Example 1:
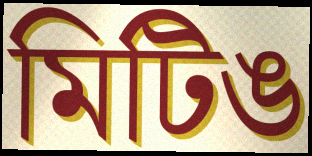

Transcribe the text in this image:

মিটিঙ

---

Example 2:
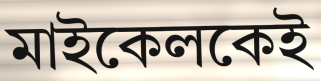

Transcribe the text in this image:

মাইকেলকেই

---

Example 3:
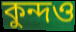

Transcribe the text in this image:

কুন্দও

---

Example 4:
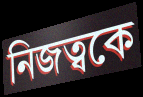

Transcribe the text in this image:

নিজত্বকে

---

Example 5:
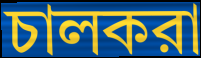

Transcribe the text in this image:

চালকরা